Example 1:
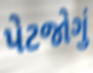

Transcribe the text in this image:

પેટજોગું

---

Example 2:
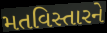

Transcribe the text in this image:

મતવિસ્તારને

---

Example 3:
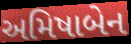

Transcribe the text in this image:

અમિષાબેન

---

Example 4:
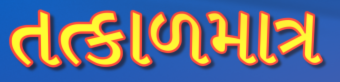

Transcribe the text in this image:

તત્કાળમાત્ર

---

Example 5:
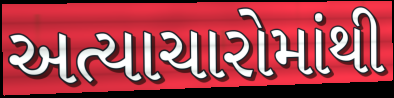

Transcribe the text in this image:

અત્યાચારોમાંથી